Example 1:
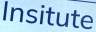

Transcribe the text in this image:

Insitute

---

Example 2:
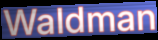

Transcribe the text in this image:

Waldman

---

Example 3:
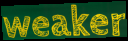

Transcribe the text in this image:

weaker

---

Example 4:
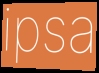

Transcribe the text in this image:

ipsa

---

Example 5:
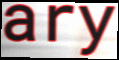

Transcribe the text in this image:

ary